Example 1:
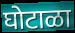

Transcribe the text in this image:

घोटाळा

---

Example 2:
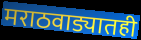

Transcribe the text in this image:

मराठवाड्यातही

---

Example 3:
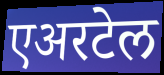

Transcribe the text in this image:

एअरटेल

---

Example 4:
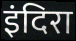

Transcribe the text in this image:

इंदिरा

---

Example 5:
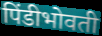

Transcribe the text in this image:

पिंडीभोवती